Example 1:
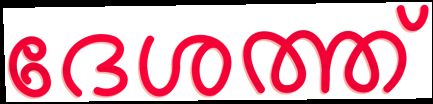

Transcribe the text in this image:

ദേശത്ത്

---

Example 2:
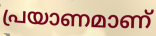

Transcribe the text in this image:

പ്രയാണമാണ്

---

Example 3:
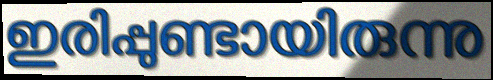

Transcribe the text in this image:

ഇരിപ്പുണ്ടായിരുന്നു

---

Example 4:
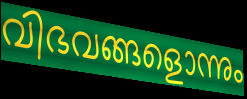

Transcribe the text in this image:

വിഭവങ്ങളൊന്നും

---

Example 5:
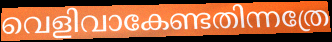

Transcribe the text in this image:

വെളിവാകേണ്ടതിന്നത്രേ